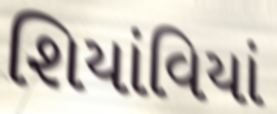
શિયાંવિયાં